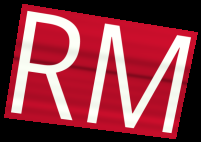
RM